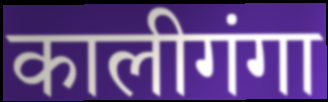
कालीगंगा